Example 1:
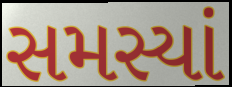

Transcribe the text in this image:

સમસ્યાં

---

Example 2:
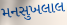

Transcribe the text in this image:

મનસુખલાલ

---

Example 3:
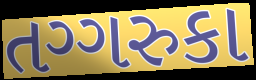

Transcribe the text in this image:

તગ્ગરુકા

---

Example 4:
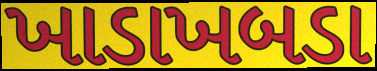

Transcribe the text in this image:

ખાડાખબડા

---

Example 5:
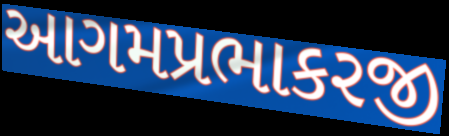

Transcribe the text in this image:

આગમપ્રભાકરજી